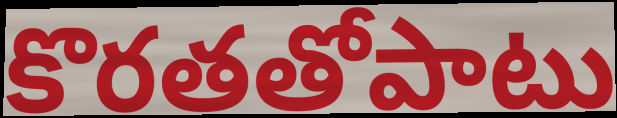
కొరతతోపాటు